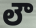
లౌ